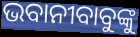
ଭବାନୀବାବୁଙ୍କୁ